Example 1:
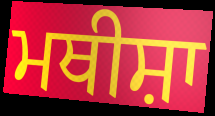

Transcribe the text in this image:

ਮਥੀਸ਼ਾ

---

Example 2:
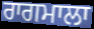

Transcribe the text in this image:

ਰਾਗਮਾਲਾ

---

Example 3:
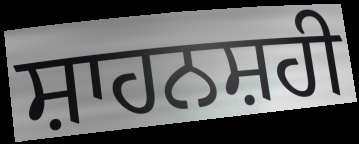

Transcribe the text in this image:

ਸ਼ਾਹਨਸ਼ਹੀ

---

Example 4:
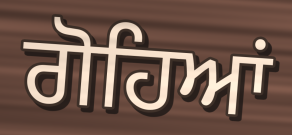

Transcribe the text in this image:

ਗੋਹਿਆਂ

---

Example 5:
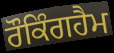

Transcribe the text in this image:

ਰੌਕਿੰਗਹੈਮ